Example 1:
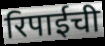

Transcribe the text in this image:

रिपाईची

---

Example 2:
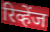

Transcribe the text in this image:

रिव्हेंज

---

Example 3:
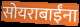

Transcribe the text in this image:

सोयराबाईंना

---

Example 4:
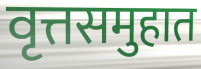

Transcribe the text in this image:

वृत्तसमुहात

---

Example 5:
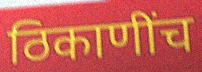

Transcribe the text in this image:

ठिकाणींच